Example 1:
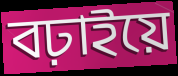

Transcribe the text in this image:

বঢ়াইয়ে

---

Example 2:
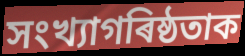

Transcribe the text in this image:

সংখ্যাগৰিষ্ঠতাক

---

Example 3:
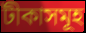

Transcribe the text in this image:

টীকাসমূহ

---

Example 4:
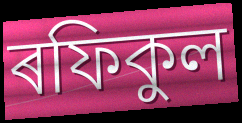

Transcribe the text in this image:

ৰফিকুল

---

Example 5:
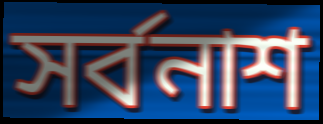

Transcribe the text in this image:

সৰ্বনাশ